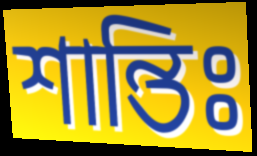
শান্তিঃ